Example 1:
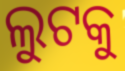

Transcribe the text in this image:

ଲୁଟକୁ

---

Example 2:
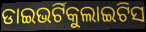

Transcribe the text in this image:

ଡାଇଭର୍ଟିକୁଲାଇଟିସ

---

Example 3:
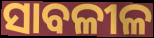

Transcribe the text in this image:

ସାବଳୀଳ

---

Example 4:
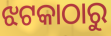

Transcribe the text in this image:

ଝଟକାଠାରୁ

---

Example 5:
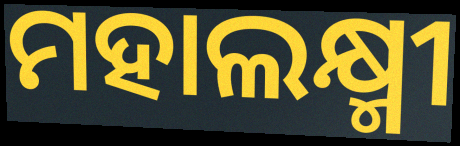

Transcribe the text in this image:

ମହାଲକ୍ଷ୍ମୀ